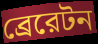
ব্রেরেটন